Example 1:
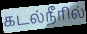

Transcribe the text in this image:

கடல்நீரில்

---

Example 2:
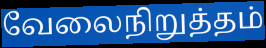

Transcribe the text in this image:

வேலைநிறுத்தம்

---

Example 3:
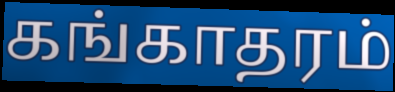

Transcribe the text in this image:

கங்காதரம்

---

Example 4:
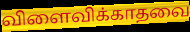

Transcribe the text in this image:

விளைவிக்காதவை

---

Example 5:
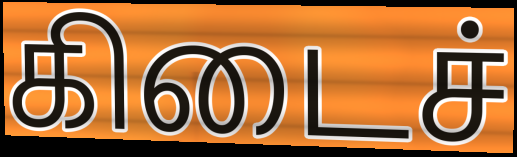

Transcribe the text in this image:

கிடைச்